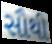
સૌથી